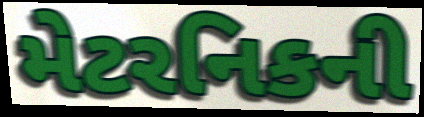
મેટરનિકની